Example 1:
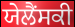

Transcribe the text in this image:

ਯੇਲੈਂਸਕੀ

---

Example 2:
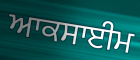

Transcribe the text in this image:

ਆਕਸਾਈਮ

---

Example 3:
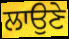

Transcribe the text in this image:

ਲਾਉਣੇ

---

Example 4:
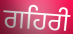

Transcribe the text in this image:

ਗਹਿਰੀ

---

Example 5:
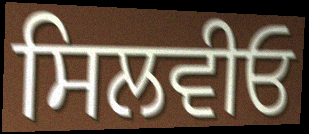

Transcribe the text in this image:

ਸਿਲਵੀਓ